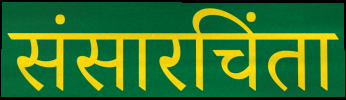
संसारचिंता